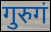
गुरुगं